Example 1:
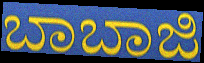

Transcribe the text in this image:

ಬಾಬಾಜಿ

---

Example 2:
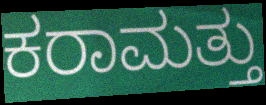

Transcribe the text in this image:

ಕರಾಮತ್ತು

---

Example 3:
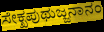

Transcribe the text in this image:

ಸೇಕ್ಖಪುಥುಜ್ಜನಾನಂ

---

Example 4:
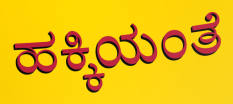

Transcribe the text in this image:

ಹಕ್ಕಿಯಂತೆ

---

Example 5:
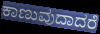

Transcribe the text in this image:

ಕಾಣುವುದಾದರೆ